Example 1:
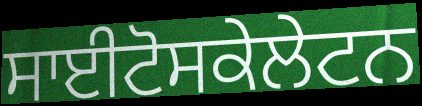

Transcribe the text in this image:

ਸਾਈਟੋਸਕੇਲੇਟਨ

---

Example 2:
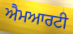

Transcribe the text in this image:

ਐਮਆਰਟੀ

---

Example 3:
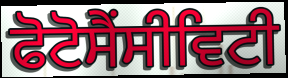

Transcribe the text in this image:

ਫੋਟੋਸੈਂਸੀਵਿਟੀ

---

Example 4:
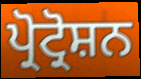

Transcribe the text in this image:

ਪ੍ਰੋਟ੍ਰੋਸ਼ਨ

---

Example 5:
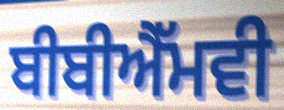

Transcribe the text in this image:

ਬੀਬੀਐੱਮਵੀ